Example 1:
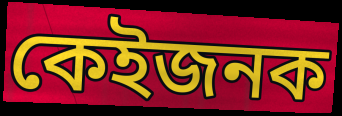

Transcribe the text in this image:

কেইজনক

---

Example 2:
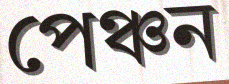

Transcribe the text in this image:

পেঞ্চন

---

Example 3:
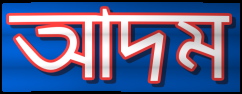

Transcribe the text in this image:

আদম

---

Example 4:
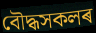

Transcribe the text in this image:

বৌদ্ধসকলৰ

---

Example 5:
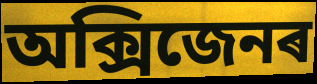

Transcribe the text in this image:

অক্সিজেনৰ